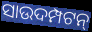
ସାଉଦମ୍ପଟନ୍